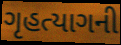
ગૃહત્યાગની